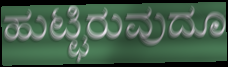
ಹುಟ್ಟಿರುವುದೂ